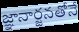
జ్ఞానార్జనతోనే